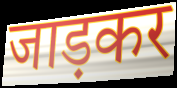
जाड़कर